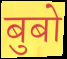
बुबो